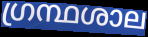
ഗ്രന്ഥശാല